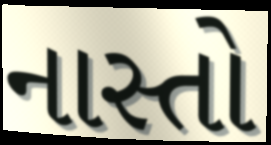
નાસ્તો